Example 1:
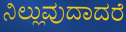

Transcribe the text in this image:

ನಿಲ್ಲುವುದಾದರೆ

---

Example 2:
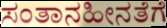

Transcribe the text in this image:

ಸಂತಾನಹೀನತೆಗೆ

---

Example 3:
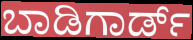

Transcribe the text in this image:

ಬಾಡಿಗಾರ್ಡ್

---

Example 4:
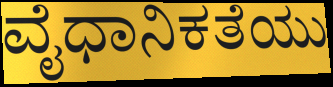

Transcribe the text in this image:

ವೈಧಾನಿಕತೆಯು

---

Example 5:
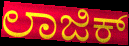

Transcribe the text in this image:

ಲಾಜಿಕ್